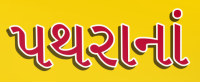
પથરાનાં